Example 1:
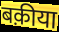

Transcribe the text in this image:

बक़ीया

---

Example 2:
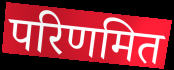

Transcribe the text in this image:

परिणमित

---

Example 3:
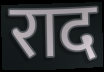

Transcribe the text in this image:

राद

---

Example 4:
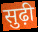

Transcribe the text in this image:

सुढ़ी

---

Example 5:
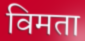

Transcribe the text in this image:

विमता